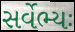
સર્વેભ્યઃ